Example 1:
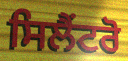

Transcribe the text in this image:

ਸਿਲੈਂਟਰੋ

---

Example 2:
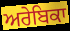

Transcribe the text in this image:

ਅਰੇਬਿਕਾ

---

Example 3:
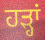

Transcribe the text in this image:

ਹਡ਼੍ਹਾਂ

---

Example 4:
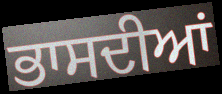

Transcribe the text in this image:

ਭਾਸਦੀਆਂ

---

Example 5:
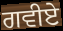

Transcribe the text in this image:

ਗਵੀਏ